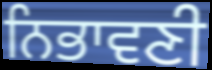
ਨਿਭਾਵਣੀ